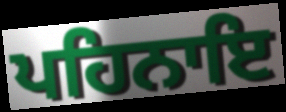
ਪਹਿਨਾਇ